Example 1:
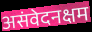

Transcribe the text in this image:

असंवेदनक्षम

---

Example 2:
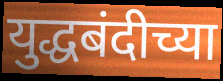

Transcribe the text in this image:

युद्धबंदीच्या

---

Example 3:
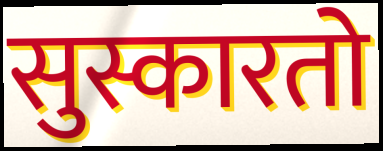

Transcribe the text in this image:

सुस्कारतो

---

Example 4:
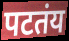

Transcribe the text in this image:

पटतंय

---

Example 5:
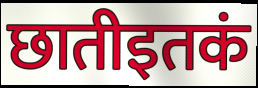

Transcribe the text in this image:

छातीइतकं